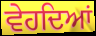
ਵੇਹਦਿਆਂ